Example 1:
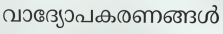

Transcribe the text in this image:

വാദ്യോപകരണങ്ങൾ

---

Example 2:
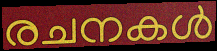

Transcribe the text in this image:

രചനകൾ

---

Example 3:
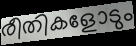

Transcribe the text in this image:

രീതികളോടും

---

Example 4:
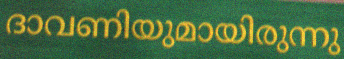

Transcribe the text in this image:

ദാവണിയുമായിരുന്നു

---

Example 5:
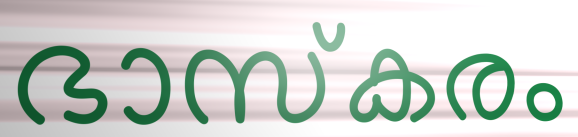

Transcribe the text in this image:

ഭാസ്കരം